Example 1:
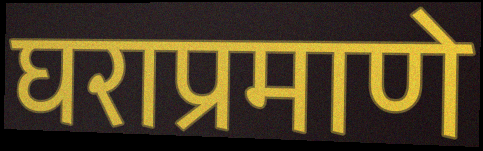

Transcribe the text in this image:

घराप्रमाणे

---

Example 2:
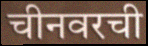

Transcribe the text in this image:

चीनवरची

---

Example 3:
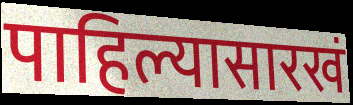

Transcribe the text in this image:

पाहिल्यासारखं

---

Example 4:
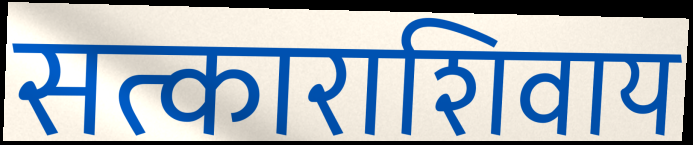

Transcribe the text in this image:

सत्काराशिवाय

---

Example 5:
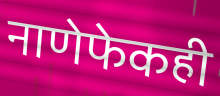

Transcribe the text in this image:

नाणेफेकही